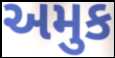
અમુક